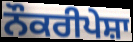
ਨੌਕਰੀਪੇਸ਼ਾ